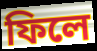
ফিলে